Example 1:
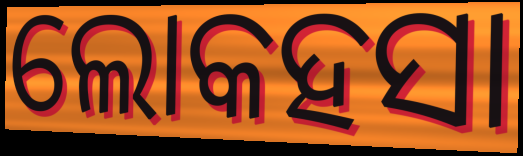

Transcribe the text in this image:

ଲୋକହସା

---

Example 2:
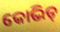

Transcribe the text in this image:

କୋଭିଡ୍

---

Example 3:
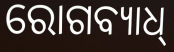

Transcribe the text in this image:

ରୋଗବ୍ୟାଧ୍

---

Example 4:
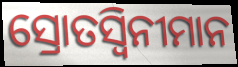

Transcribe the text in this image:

ସ୍ରୋତସ୍ୱିନୀମାନ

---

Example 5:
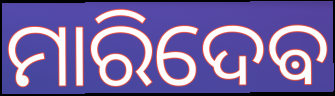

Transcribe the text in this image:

ମାରିଦେଵ